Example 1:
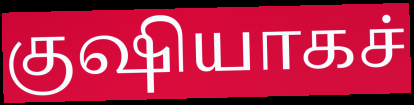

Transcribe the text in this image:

குஷியாகச்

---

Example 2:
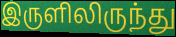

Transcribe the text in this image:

இருளிலிருந்து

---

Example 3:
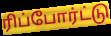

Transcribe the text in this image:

ரிப்போர்ட்டு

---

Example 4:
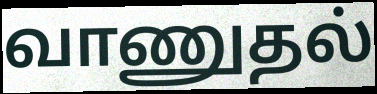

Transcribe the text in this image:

வாணுதல்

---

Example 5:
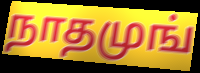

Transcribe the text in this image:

நாதமுங்